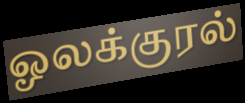
ஓலக்குரல்